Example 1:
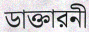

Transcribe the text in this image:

ডাক্তারনী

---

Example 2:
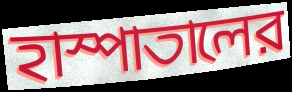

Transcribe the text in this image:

হাস্পাতালের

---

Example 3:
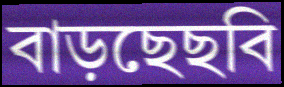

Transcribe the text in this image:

বাড়ছেছবি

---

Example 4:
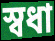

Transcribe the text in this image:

স্বধা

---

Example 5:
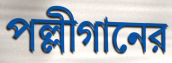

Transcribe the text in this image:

পল্লীগানের